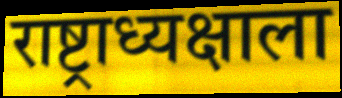
राष्ट्राध्यक्षाला